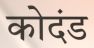
कोदंड